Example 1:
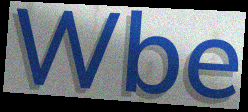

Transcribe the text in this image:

Wbe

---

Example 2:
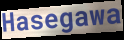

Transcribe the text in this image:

Hasegawa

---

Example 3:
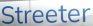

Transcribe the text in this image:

Streeter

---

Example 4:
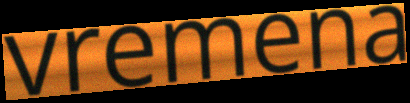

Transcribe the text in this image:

vremena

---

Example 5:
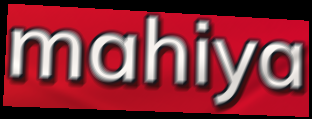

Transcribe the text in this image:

mahiya